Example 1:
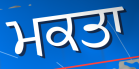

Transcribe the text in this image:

ਮਕਤਾ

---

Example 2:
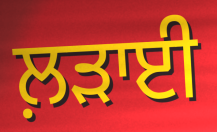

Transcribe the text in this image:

ਲ਼ੜਾਈ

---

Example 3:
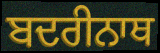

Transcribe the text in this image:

ਬਦਰੀਨਾਥ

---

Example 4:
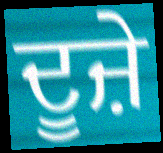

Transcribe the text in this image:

ਦੂਜ਼ੇ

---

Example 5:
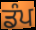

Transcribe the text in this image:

ਡੰਪ